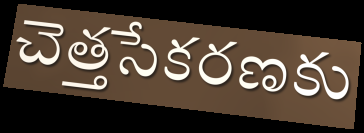
చెత్తసేకరణకు